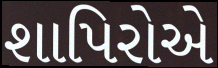
શાપિરોએ